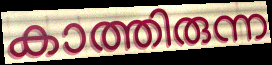
കാത്തിരുന്ന